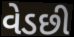
વેડછી